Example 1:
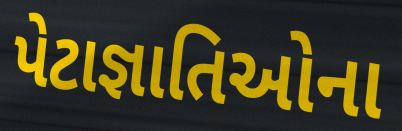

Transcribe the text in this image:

પેટાજ્ઞાતિઓના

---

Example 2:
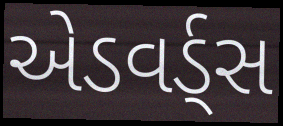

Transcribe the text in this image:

એડવર્ડ્સ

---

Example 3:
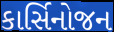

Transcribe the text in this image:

કાર્સિનોજન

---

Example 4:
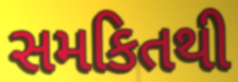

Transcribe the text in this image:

સમકિતથી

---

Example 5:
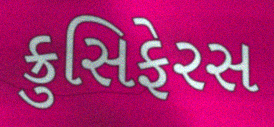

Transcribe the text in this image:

ક્રુસિફેરસ